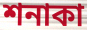
শনাকা